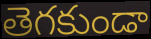
తెగకుండా